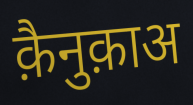
क़ैनुक़ाअ